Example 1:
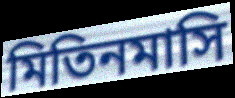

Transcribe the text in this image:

মিতিনমাসি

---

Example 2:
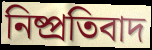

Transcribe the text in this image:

নিষ্প্রতিবাদ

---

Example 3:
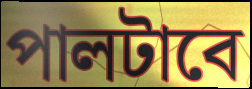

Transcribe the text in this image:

পালটাবে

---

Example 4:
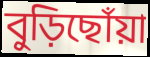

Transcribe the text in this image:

বুড়িছোঁয়া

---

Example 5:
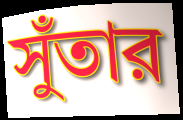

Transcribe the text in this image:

সুঁতার